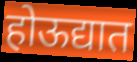
होऊद्यात